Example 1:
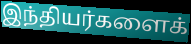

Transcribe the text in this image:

இந்தியர்களைக்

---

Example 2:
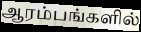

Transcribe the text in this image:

ஆரம்பங்களில்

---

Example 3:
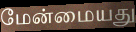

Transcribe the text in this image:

மேன்மையது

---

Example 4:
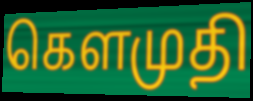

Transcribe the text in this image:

கௌமுதி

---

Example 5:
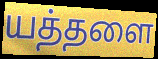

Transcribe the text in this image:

யத்தளை